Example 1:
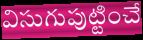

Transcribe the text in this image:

విసుగుపుట్టించే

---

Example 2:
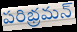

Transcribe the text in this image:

పరిభ్రమన్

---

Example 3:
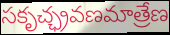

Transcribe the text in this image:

సకృచ్ఛ్రవణమాత్రేణ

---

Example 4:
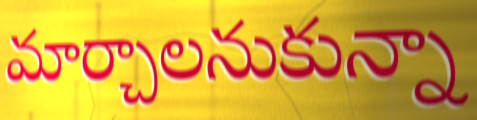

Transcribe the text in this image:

మార్చాలనుకున్నా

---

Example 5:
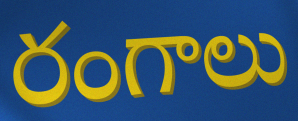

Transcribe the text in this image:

రంగాలు